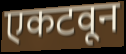
एकटवून